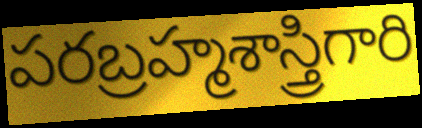
పరబ్రహ్మశాస్త్రిగారి